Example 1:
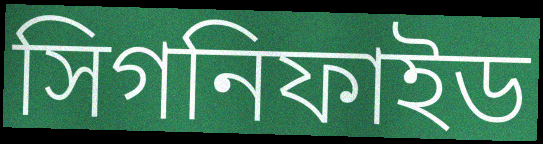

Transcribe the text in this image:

সিগনিফাইড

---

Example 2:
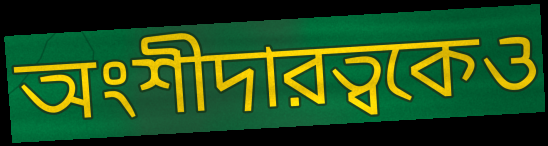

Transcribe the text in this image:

অংশীদারত্বকেও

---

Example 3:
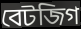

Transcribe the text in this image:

বেটজিগ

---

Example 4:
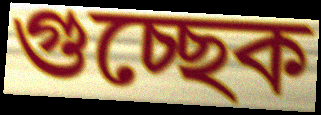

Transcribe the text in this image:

গুচ্ছেক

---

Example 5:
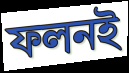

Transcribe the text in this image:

ফলনই